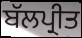
ਬੱਲਪ੍ਰੀਤ